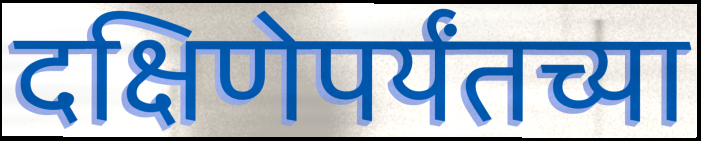
दक्षिणेपर्यंतच्या